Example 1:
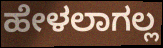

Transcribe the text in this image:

ಹೇಳಲಾಗಲ್ಲ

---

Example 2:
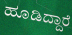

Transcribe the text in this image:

ಹೂಡಿದ್ದಾರೆ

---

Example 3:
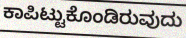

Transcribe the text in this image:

ಕಾಪಿಟ್ಟುಕೊಂಡಿರುವುದು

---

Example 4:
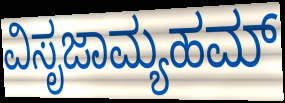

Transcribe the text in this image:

ವಿಸೃಜಾಮ್ಯಹಮ್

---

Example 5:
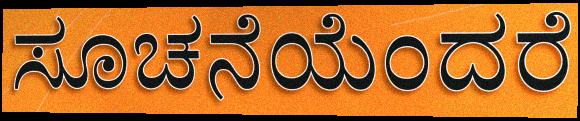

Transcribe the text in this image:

ಸೂಚನೆಯೆಂದರೆ